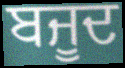
ਬਜੂਦ